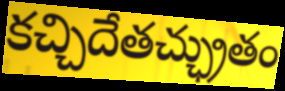
కచ్చిదేతచ్ఛ్రుతం